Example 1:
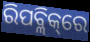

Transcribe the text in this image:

ରିପବ୍ଲିକ୍‌ରେ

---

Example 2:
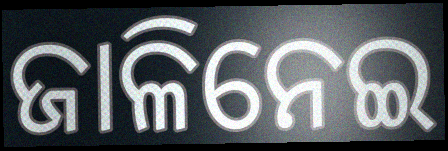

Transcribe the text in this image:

ଜାଳିନେଇ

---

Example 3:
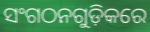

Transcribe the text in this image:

ସଂଗଠନଗୁଡ଼ିକରେ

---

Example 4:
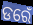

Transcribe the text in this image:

ଡରେଁ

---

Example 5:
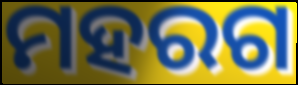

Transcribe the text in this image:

ମହରଗ